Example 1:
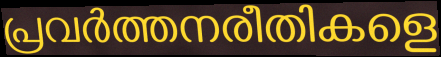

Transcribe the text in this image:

പ്രവർത്തനരീതികളെ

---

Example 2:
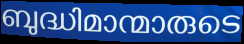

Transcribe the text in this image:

ബുദ്ധിമാന്മാരുടെ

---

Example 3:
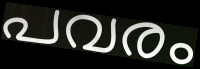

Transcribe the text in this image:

പവരം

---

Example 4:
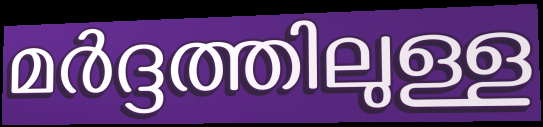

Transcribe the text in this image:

മർദ്ദത്തിലുള്ള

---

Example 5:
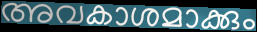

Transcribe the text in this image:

അവകാശമാക്കും